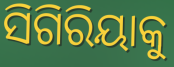
ସିଗିରିୟାକୁ